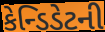
કેન્ડિડેટની